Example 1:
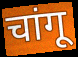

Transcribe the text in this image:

चांगू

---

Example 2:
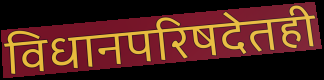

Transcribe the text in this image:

विधानपरिषदेतही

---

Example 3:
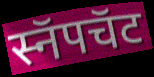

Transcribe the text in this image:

स्नॅपचॅट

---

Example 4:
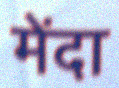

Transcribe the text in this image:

मेंदा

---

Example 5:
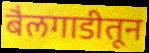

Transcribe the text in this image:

बैलगाडीतून